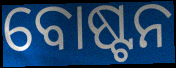
ବୋଷ୍ଟନ